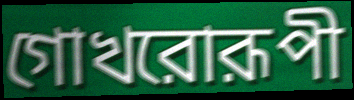
গোখরোরূপী